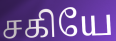
சகியே